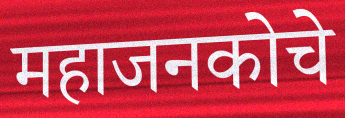
महाजनकोचे